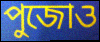
পুজোও